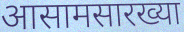
आसामसारख्या